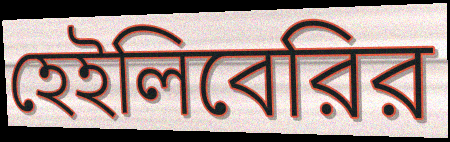
হেইলিবেরির